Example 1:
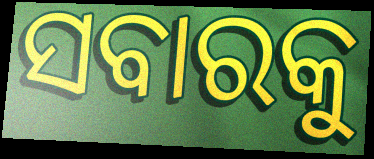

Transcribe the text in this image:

ସବାରକୁ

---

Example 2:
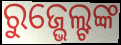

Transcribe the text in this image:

ରୁଜ୍ଭେଲ୍ଟଙ୍କ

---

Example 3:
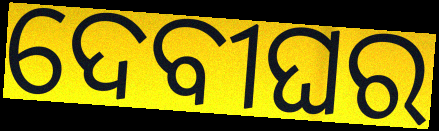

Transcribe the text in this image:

ଦେବୀଘର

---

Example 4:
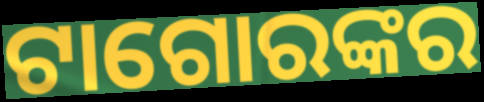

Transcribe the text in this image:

ଟାଗୋରଙ୍କର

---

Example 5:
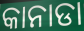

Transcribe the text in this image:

କାନାଡା